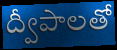
ద్వీపాలతో